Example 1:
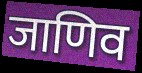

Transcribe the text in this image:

जाणिव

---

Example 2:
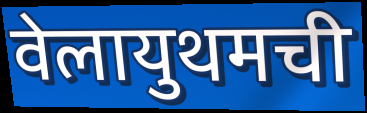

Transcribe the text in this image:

वेलायुथमची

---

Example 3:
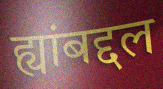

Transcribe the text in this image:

ह्यांबद्दल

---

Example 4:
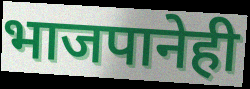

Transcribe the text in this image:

भाजपानेही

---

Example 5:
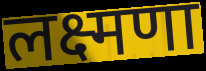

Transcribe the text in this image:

लक्ष्मणा